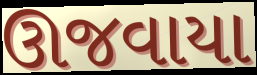
ઊજવાયા